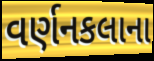
વર્ણનકલાના